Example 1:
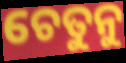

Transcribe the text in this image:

ଚେତୁନୁ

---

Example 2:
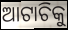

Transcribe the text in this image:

ଆଟାଚିକୁ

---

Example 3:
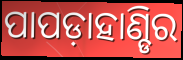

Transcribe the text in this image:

ପାପଡ଼ାହାଣ୍ଡିର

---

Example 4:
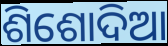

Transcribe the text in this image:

ଶିଶୋଦିଆ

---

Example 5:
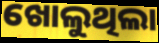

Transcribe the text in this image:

ଖୋଲୁଥିଲା